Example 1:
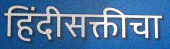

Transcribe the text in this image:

हिंदीसक्तीचा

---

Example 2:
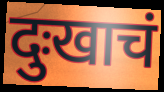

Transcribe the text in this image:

दुःखाचं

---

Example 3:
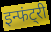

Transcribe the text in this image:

इन्फंट्री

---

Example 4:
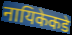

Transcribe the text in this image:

नायिकेकडे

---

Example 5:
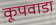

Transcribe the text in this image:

कूपवाडा